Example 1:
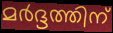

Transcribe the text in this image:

മർദ്ദത്തിന്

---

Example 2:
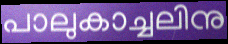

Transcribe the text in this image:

പാലുകാച്ചലിനു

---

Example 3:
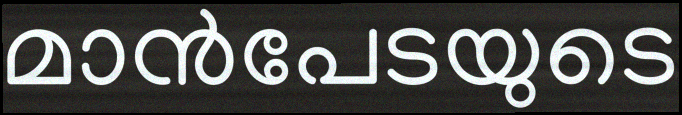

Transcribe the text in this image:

മാൻപേടയുടെ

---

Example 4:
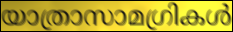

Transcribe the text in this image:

യാത്രാസാമഗ്രികൾ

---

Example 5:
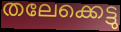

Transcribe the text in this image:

തലേക്കെട്ടു